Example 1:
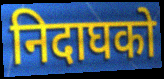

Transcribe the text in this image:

निदाघको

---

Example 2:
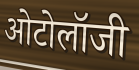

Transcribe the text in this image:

ओटोलॉजी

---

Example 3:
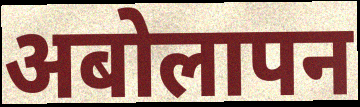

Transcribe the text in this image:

अबोलापन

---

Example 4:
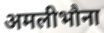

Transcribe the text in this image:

अमलीभौना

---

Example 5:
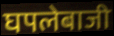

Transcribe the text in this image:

घपलेबाजी